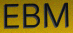
EBM